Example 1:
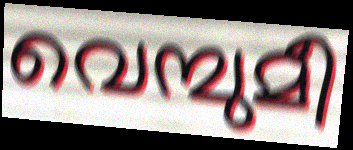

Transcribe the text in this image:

വെമ്പുമീ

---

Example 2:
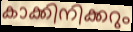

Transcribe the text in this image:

കാക്കിനിക്കറും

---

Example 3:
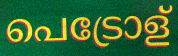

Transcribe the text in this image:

പെട്രോള്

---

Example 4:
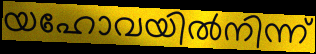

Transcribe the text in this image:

യഹോവയിൽനിന്ന്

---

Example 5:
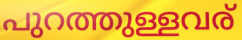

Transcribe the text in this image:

പുറത്തുള്ളവര്